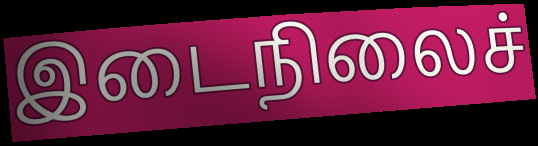
இடைநிலைச்